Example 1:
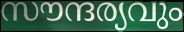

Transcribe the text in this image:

സൗന്ദര്യവും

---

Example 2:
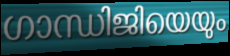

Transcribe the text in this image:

ഗാന്ധിജിയെയും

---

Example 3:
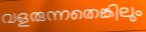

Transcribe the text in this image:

വളരുന്നതെങ്കിലും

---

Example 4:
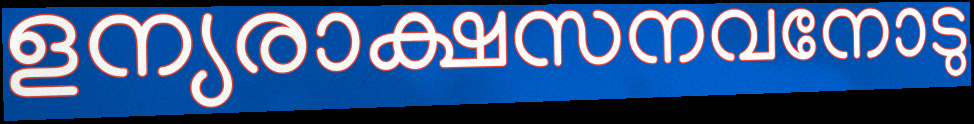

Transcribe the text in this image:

ളന്യരാക്ഷസനവനോടു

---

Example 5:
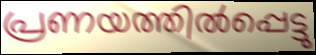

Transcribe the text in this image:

പ്രണയത്തിൽപ്പെട്ടു